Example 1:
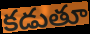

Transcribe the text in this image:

కడుతూ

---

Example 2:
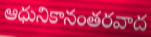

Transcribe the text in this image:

ఆధునికానంతరవాద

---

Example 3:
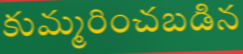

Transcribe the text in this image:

కుమ్మరించబడిన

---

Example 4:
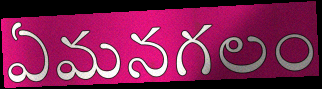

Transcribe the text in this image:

ఏమనగలం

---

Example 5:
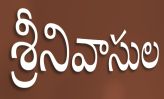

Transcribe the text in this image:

శ్రీనివాసుల